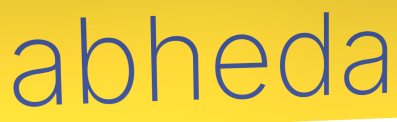
abheda